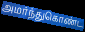
அமர்ந்துகொண்ட